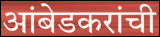
आंबेडकरांची